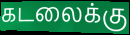
கடலைக்கு